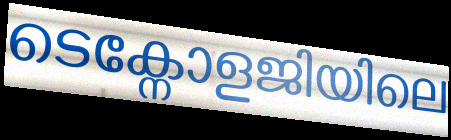
ടെക്നോളജിയിലെ